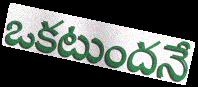
ఒకటుందనే